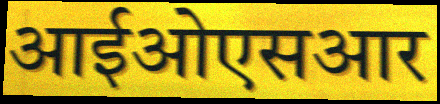
आईओएसआर